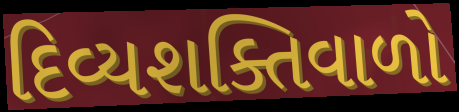
દિવ્યશક્તિવાળો